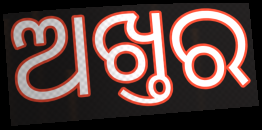
ଅଖ୍ତର